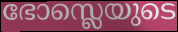
ഭോസ്ലെയുടെ